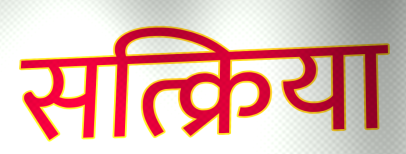
सत्क्रिया